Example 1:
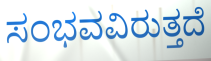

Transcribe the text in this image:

ಸಂಭವವಿರುತ್ತದೆ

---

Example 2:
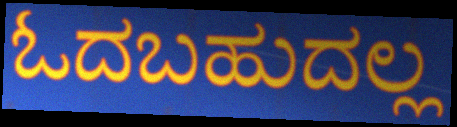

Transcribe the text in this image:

ಓದಬಹುದಲ್ಲ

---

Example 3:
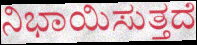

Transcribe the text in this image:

ನಿಭಾಯಿಸುತ್ತದೆ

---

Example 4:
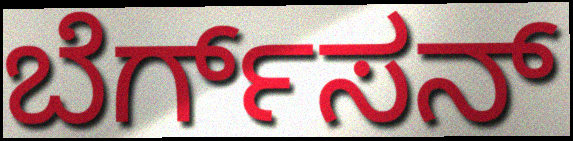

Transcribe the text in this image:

ಬೆರ್ಗ್‌ಸನ್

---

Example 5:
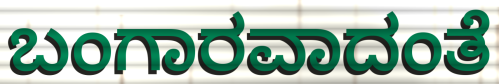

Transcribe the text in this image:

ಬಂಗಾರವಾದಂತೆ